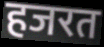
हजरत